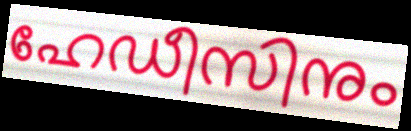
ഹേഡീസിനും